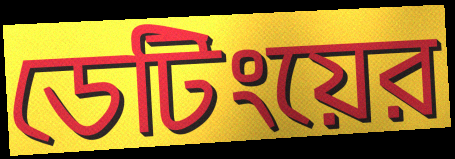
ডেটিংয়ের